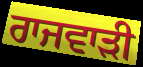
ਰਾਜਵਾੜੀ